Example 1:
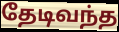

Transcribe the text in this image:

தேடிவந்த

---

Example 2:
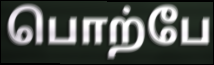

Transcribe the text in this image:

பொற்பே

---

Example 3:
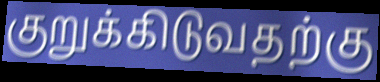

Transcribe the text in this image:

குறுக்கிடுவதற்கு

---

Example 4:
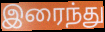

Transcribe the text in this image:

இரைந்து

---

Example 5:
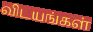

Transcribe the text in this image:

விடயங்கள்